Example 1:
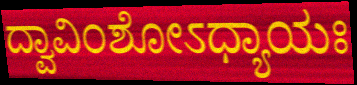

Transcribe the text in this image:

ದ್ವಾವಿಂಶೋಽಧ್ಯಾಯಃ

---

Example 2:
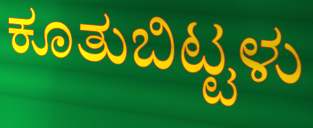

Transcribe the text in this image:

ಕೂತುಬಿಟ್ಟಳು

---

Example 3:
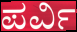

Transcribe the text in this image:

ಪರ್ವಿ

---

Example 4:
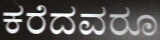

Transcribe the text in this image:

ಕರೆದವರೂ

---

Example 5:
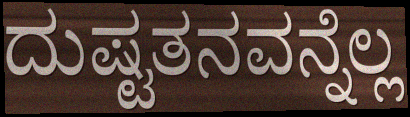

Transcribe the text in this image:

ದುಷ್ಟತನವನ್ನೆಲ್ಲ